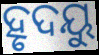
ହୃଦୟୁ